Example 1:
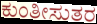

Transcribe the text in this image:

ಕುಂತೀಸುತರ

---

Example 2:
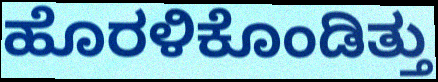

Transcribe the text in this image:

ಹೊರಳಿಕೊಂಡಿತ್ತು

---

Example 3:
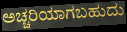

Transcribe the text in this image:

ಅಚ್ಚರಿಯಾಗಬಹುದು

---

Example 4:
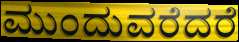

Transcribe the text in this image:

ಮುಂದುವರೆದರೆ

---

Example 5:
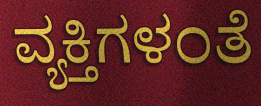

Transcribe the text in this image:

ವ್ಯಕ್ತಿಗಳಂತೆ